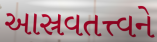
આસ્રવતત્ત્વને